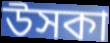
উসকা